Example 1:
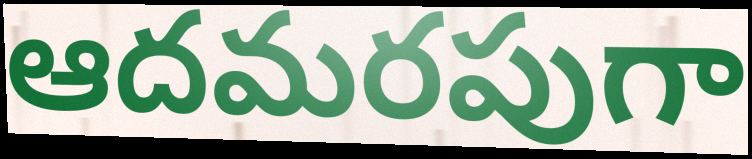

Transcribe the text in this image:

ఆదమరపుగా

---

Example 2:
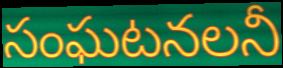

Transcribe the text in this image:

సంఘటనలనీ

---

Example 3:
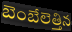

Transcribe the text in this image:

బెంబేలెత్తిన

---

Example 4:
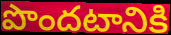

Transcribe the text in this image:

పొందటానికి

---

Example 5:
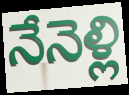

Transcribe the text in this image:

నేనెళ్లి